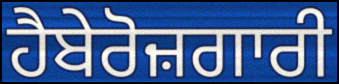
ਹੈਬੇਰੋਜ਼ਗਾਰੀ